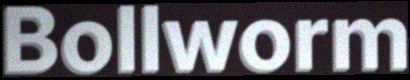
Bollworm